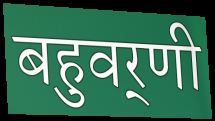
बहुवर्णी